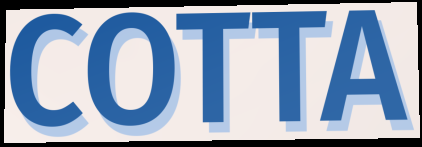
COTTA